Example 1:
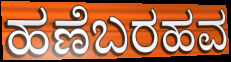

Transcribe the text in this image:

ಹಣೆಬರಹವ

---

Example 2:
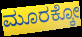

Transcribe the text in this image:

ಮೂರಕ್ಕೋ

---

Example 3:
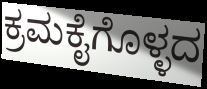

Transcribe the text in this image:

ಕ್ರಮಕೈಗೊಳ್ಳದ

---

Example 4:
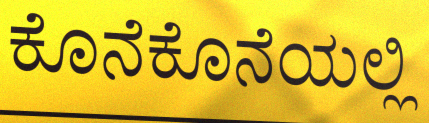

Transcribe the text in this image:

ಕೊನೆಕೊನೆಯಲ್ಲಿ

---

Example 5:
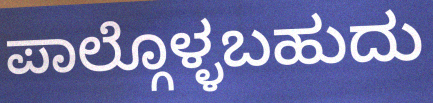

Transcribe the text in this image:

ಪಾಲ್ಗೊಳ್ಳಬಹುದು